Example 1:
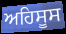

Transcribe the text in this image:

ਅਹਿਸੂਸ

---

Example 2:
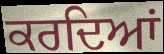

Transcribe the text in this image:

ਕਰਦਿਆਂ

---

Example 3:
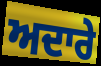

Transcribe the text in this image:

ਅਦਾਰੇ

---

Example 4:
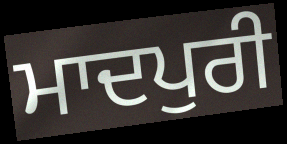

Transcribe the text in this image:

ਮਾਦਪੁਰੀ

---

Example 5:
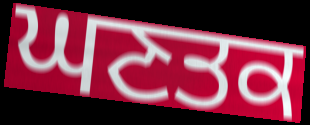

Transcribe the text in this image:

ਘਣਤਕ